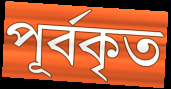
পূর্বকৃত